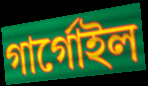
গাৰ্গোইল